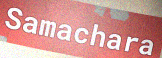
Samachara